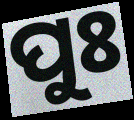
ପୁଃ